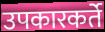
उपकारकर्ते